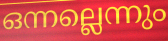
ഒന്നല്ലെന്നും